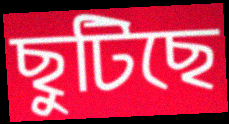
ছুটিছে